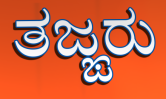
ತಜ್ಙರು